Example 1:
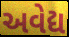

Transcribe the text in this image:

અવેદ્ય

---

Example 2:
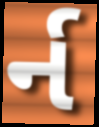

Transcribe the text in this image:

ર્ન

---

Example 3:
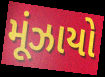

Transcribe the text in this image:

મૂંઝાયો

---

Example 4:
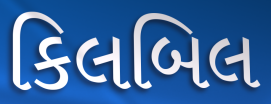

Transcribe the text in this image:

કિલબિલ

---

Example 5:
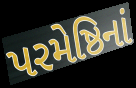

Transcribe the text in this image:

પરમેષ્ઠિનાં